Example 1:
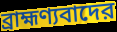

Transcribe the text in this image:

ব্রাহ্মণ্যবাদের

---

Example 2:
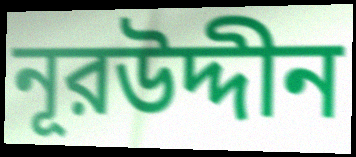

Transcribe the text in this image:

নূরউদ্দীন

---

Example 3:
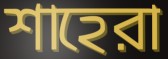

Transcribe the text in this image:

শাহেরা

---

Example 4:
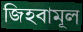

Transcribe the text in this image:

জিহবামূল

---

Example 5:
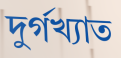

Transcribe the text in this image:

দুর্গখ্যাত